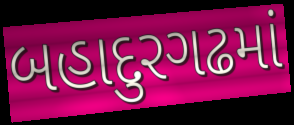
બહાદુરગઢમાં